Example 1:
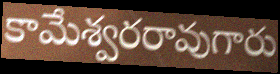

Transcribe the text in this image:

కామేశ్వరరావుగారు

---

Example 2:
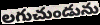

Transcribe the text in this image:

లగుచుండును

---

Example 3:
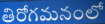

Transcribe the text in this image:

తిరోగమనంలో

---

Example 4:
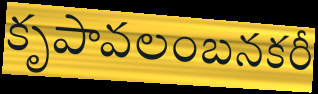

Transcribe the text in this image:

కృపావలంబనకరీ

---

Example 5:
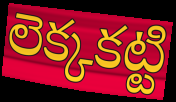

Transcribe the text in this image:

లెక్కకట్టి